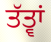
ਤੱਤ੍ਵਾਂ